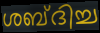
ശബ്ദിച്ച